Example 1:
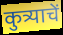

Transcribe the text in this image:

कुत्र्याचें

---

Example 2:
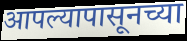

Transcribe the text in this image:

आपल्यापासूनच्या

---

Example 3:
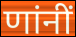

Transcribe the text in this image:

णांनीं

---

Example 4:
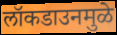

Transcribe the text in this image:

लॉकडाउनमुळे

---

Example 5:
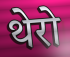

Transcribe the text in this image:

थेरो